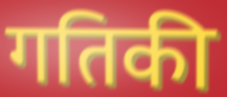
गतिकी